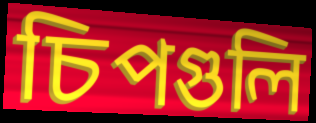
চিপগুলি